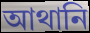
আথানি